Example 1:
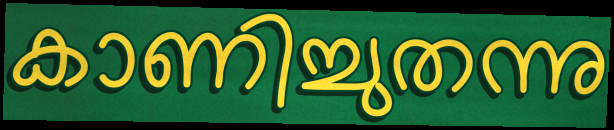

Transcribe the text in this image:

കാണിച്ചുതന്നു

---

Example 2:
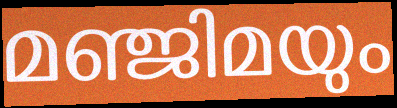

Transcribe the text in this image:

മഞ്ജിമയും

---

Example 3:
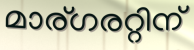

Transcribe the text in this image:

മാര്ഗരറ്റിന്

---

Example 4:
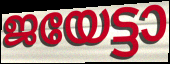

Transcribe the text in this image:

ജയേട്ടാ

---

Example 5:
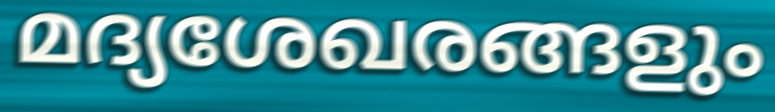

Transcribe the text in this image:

മദ്യശേഖരങ്ങളും